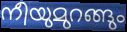
നീയുമുറങ്ങും